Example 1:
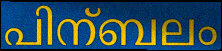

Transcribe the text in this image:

പിന്ബലം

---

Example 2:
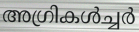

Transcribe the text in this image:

അഗ്രികൾച്ചർ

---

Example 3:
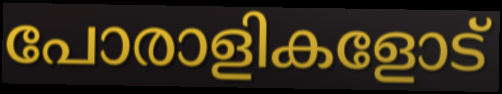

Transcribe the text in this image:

പോരാളികളോട്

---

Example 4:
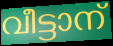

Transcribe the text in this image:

വീട്ടാന്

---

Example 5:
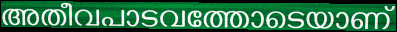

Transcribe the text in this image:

അതീവപാടവത്തോടെയാണ്